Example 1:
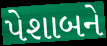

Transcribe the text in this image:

પેશાબને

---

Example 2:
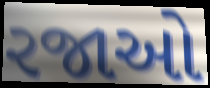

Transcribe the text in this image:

રજાઓ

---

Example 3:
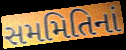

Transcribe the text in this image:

સમમિતિનાં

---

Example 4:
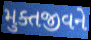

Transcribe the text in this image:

મુક્તજીવને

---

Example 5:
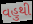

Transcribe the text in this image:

વહુથી